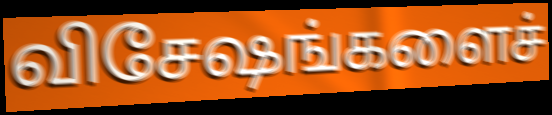
விசேஷங்களைச்